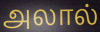
அலால்